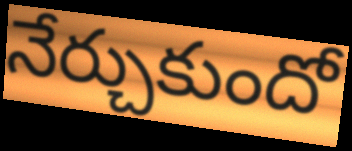
నేర్చుకుందో